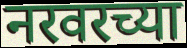
नरवरच्या